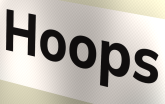
Hoops